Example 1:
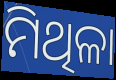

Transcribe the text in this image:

ମିଥିଳା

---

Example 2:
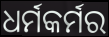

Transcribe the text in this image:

ଧର୍ମକର୍ମର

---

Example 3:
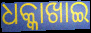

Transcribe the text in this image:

ଧକ୍କାଖାଇ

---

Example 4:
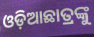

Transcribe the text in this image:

ଓଡ଼ିଆଛାତ୍ରଙ୍କୁ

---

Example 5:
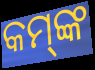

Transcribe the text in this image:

କମ୍‌ଙ୍କ